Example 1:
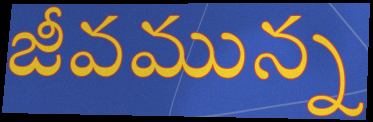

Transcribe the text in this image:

జీవమున్న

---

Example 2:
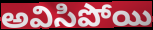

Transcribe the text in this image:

అవిసిపోయి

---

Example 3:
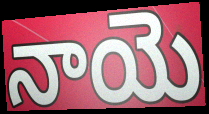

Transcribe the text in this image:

నాయె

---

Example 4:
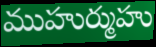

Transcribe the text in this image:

ముహుర్ముహు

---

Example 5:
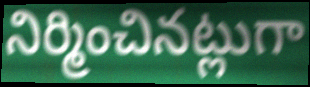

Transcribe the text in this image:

నిర్మించినట్లుగా